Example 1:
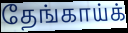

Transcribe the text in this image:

தேங்காய்க்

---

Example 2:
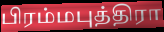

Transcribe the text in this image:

பிரம்மபுத்திரா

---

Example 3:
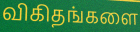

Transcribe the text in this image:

விகிதங்களை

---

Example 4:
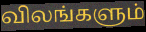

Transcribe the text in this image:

விலங்களும்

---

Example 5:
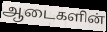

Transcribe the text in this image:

ஆடைகளின்